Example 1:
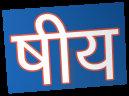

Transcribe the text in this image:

षीय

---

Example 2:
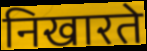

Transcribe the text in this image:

निखारते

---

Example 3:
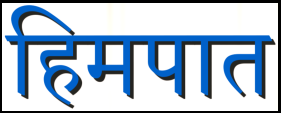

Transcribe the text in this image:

हिमपात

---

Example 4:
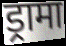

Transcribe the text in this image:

ड्रामा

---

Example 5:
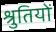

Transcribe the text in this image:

श्रुतियों